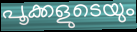
പൂക്കളുടെയും